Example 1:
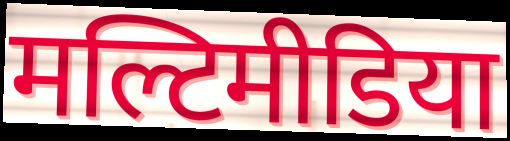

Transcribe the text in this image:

मल्टिमीडिया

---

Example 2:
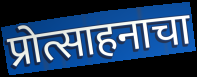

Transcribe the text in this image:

प्रोत्साहनाचा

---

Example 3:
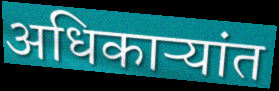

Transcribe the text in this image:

अधिकाऱ्यांत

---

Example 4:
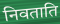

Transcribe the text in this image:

निवताति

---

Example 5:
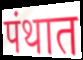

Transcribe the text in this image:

पंथात